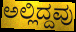
ಅಲ್ಲಿದ್ದವು